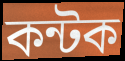
কন্টক